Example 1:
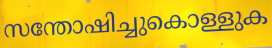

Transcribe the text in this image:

സന്തോഷിച്ചുകൊള്ളുക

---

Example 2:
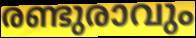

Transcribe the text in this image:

രണ്ടുരാവും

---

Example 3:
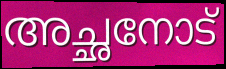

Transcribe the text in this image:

അച്ഛനോട്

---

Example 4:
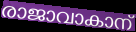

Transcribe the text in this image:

രാജാവാകാന്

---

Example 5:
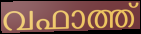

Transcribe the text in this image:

വഫാത്ത്